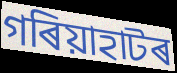
গৰিয়াহাটৰ